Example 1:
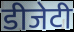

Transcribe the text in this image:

डीजेटी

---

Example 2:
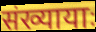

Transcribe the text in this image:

संख्यायाः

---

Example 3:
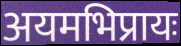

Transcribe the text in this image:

अयमभिप्रायः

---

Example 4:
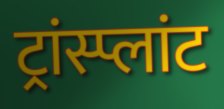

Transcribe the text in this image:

ट्रांस्प्लांट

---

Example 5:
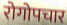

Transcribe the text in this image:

रोगोपचार